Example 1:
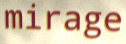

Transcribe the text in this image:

mirage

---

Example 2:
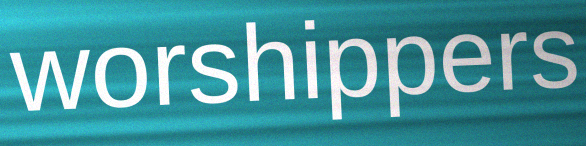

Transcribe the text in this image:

worshippers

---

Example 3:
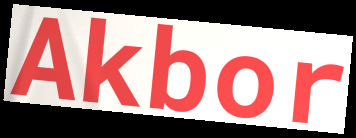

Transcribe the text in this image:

Akbor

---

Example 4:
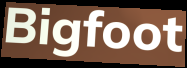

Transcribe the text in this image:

Bigfoot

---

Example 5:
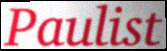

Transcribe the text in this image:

Paulist